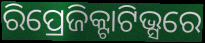
ରିପ୍ରେଜିକ୍ଟାଟିଭ୍ସରେ